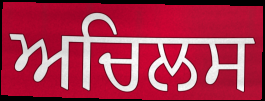
ਅਚਿਲਸ